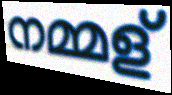
നമ്മള്